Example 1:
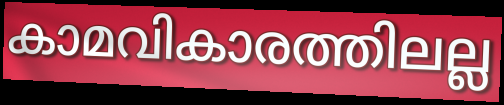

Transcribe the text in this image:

കാമവികാരത്തിലല്ല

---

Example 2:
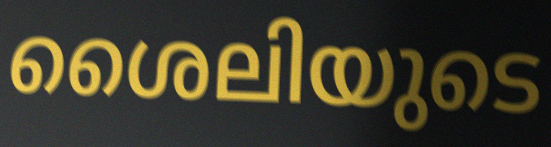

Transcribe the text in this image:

ശൈലിയുടെ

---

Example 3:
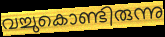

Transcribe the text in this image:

വച്ചുകൊണ്ടിരുന്നു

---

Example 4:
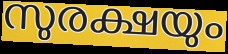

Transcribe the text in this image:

സുരക്ഷയും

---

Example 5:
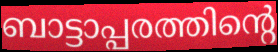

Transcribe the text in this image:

ബാട്ടാപ്പരത്തിന്റെ